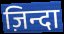
ज़िन्दा